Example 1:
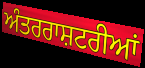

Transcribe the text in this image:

ਅੰਤਰਰਾਸ਼ਟਰੀਆਂ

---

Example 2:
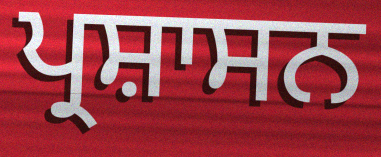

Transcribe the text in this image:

ਪ੍ਰਸ਼ਾਸਨ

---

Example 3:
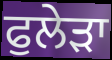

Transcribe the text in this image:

ਫੁਲੇੜਾ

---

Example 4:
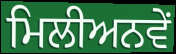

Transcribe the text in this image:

ਮਿਲੀਅਨਵੇਂ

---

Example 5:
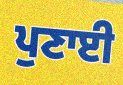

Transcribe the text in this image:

ਪੁਣਾਈ